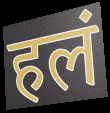
हलं